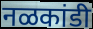
नळकांडी